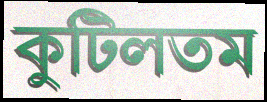
কুটিলতম